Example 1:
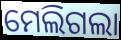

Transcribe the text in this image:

ମେଲିଗଲା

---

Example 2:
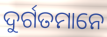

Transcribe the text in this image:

ଦୁର୍ଗତମାନେ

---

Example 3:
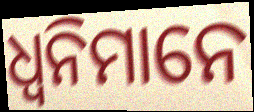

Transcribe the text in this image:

ଧ୍ୱନିମାନେ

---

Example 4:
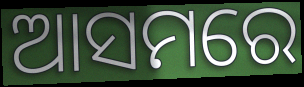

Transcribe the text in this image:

ଆସମରେ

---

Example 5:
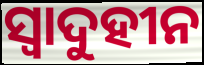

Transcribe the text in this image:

ସ୍ୱାଦୁହୀନ